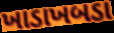
ખાડાખબડા